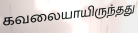
கவலையாயிருந்தது